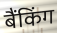
बैंकिंग